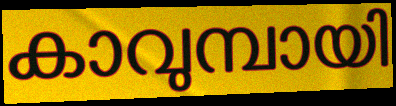
കാവുമ്പായി